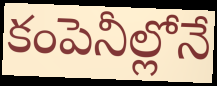
కంపెనీల్లోనే